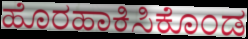
ಹೊರಹಾಕಿಸಿಕೊಂಡ